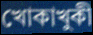
খোকাখুকী